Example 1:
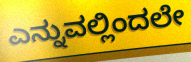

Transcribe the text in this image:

ಎನ್ನುವಲ್ಲಿಂದಲೇ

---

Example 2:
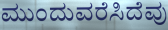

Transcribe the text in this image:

ಮುಂದುವರೆಸಿದೆವು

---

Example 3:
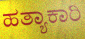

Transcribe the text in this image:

ಹತ್ಯಾಕಾರಿ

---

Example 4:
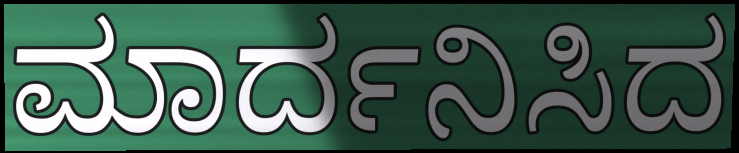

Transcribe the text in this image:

ಮಾರ್ದನಿಸಿದ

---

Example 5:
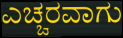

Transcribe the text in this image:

ಎಚ್ಚರವಾಗು